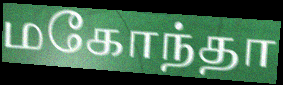
மகோந்தா